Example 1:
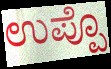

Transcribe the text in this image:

ಉಪ್ಪೊ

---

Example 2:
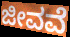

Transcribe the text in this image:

ಜೀವವೆ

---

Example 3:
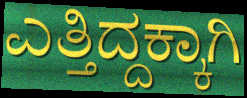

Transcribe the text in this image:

ಎತ್ತಿದ್ದಕ್ಕಾಗಿ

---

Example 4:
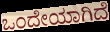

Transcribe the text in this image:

ಒಂದೇಯಾಗಿದೆ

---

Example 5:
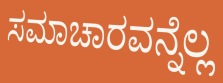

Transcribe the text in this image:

ಸಮಾಚಾರವನ್ನೆಲ್ಲ